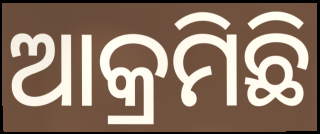
ଆକ୍ରମିଛି